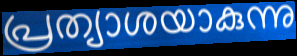
പ്രത്യാശയാകുന്നു